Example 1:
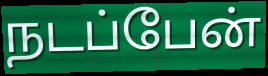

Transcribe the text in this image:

நடப்பேன்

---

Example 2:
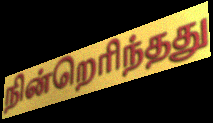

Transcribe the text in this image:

நின்றெரிந்தது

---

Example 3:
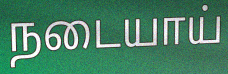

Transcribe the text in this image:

நடையாய்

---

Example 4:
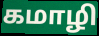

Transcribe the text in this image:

கமாழி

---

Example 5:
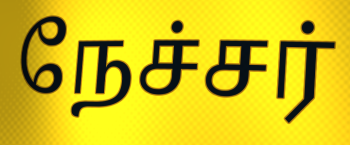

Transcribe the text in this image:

நேச்சர்